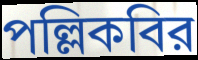
পল্লিকবির